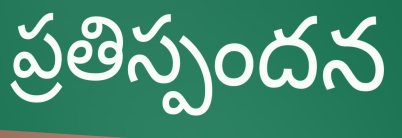
ప్రతిస్పందన